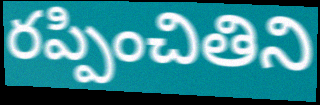
రప్పించితిని